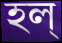
হল্